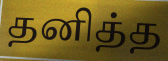
தனித்த